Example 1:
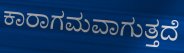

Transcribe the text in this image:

ಕಾರಾಗಮವಾಗುತ್ತದೆ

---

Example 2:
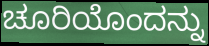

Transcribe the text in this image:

ಚೂರಿಯೊಂದನ್ನು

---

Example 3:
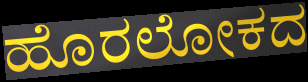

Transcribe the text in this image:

ಹೊರಲೋಕದ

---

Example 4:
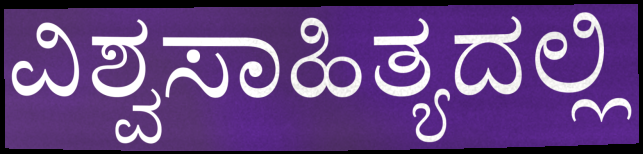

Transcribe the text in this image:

ವಿಶ್ವಸಾಹಿತ್ಯದಲ್ಲಿ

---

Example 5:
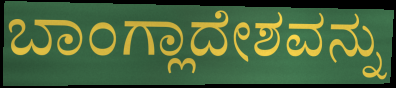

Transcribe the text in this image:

ಬಾಂಗ್ಲಾದೇಶವನ್ನು